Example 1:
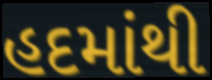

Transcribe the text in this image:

હદમાંથી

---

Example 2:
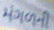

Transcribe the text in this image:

મંગળની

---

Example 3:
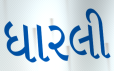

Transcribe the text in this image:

ધારલી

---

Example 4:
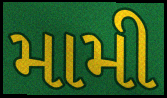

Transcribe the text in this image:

મામી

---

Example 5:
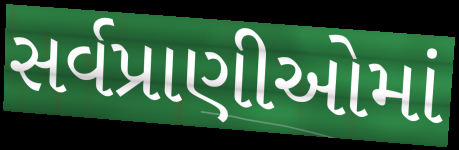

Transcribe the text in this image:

સર્વપ્રાણીઓમાં